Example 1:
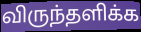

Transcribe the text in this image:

விருந்தளிக்க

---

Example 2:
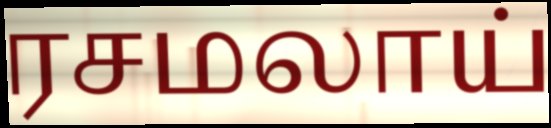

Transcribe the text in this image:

ரசமலாய்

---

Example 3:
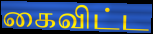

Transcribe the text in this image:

கைவிட்ட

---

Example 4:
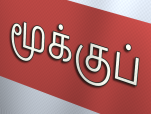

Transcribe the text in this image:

மூக்குப்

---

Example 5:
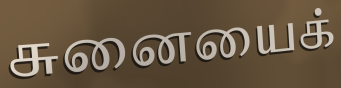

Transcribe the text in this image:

சுனையைக்